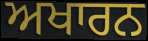
ਅਖਾਰਨ